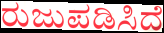
ರುಜುಪಡಿಸಿದೆ